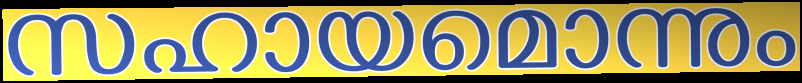
സഹായമൊന്നും